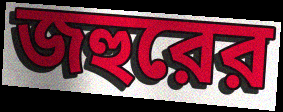
জহুরের